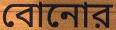
বোনোর